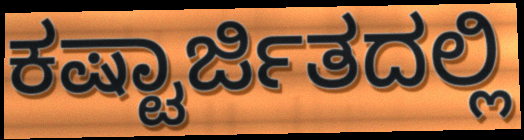
ಕಷ್ಟಾರ್ಜಿತದಲ್ಲಿ